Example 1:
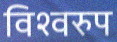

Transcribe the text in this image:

विश्वरुप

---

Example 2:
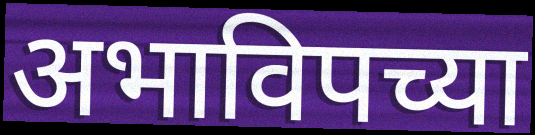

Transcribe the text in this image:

अभाविपच्या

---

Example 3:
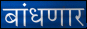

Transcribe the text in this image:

बांधणार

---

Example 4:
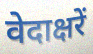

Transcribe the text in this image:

वेदाक्षरें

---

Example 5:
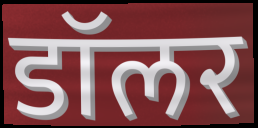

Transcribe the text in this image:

डॉलर